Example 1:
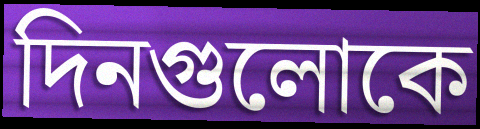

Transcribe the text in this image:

দিনগুলোকে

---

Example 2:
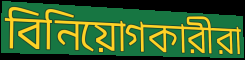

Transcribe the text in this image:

বিনিয়োগকারীরা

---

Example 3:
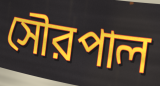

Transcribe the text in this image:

সৌরপাল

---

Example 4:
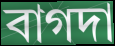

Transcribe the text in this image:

বাগদা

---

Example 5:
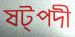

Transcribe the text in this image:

ষট্‌পদী